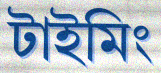
টাইমিং